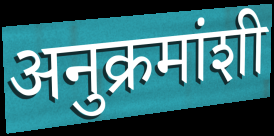
अनुक्रमांशी